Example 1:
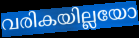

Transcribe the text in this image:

വരികയില്ലയോ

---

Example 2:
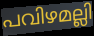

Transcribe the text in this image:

പവിഴമല്ലി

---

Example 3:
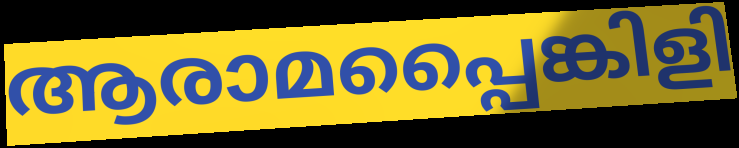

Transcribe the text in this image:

ആരാമപ്പൈങ്കിളി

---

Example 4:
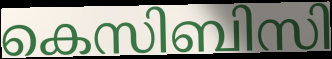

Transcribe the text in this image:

കെസിബിസി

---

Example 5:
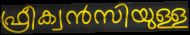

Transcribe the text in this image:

ഫ്രീക്വൻസിയുള്ള